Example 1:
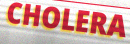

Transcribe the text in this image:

CHOLERA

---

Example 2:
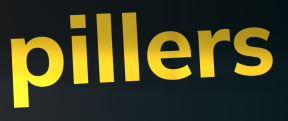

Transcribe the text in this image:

pillers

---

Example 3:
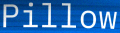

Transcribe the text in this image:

Pillow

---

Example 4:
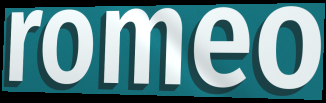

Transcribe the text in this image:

romeo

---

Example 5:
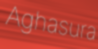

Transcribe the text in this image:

Aghasura